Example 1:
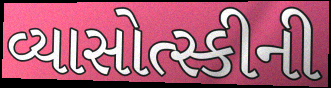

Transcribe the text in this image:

વ્યાસોત્સ્કીની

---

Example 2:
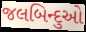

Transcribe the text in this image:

જલબિન્દુઓ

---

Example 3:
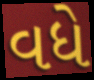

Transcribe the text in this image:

વધે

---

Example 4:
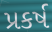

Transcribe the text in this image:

પ્રકર્ષ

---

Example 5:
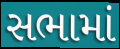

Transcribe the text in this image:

સભામાં